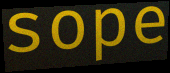
sope